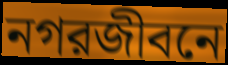
নগরজীবনে